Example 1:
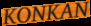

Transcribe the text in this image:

KONKAN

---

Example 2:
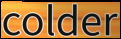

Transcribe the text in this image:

colder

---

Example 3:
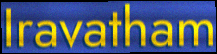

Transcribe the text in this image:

Iravatham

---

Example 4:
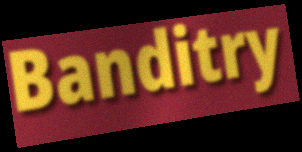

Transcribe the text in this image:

Banditry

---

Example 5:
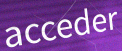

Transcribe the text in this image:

acceder